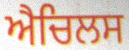
ਐਚਿਲਸ